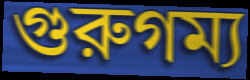
গুরুগম্য